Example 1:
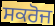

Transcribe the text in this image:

ਸਕਰੋਜ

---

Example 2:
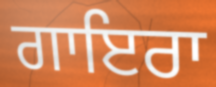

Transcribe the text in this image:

ਗਾਇਰਾ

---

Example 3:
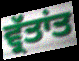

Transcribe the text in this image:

ਵ੍ਰੱਤਾਂਤ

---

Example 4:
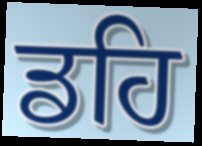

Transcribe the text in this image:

ਡਹਿ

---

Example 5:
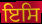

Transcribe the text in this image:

ਇਸਿ